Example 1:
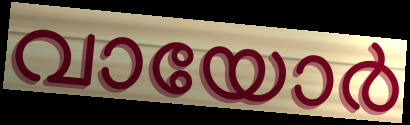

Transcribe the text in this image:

വായോർ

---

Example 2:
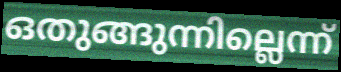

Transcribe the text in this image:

ഒതുങ്ങുന്നില്ലെന്ന്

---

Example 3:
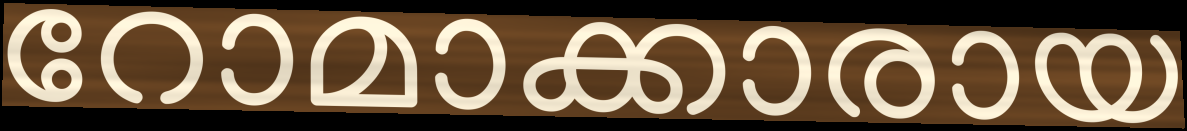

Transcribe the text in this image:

റോമാക്കാരായ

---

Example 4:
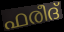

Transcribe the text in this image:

ഫരീദ്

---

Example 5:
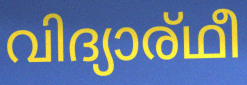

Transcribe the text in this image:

വിദ്യാര്ഥീ